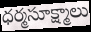
ధర్మసూక్ష్మాలు